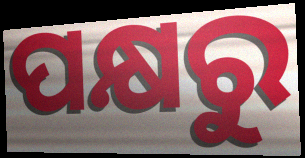
ପକ୍ଷରୁ